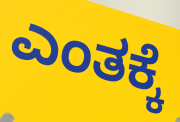
ಎಂತಕ್ಕೆ